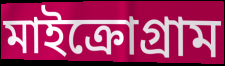
মাইক্রোগ্রাম